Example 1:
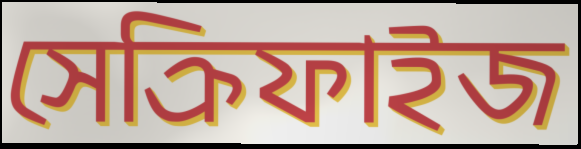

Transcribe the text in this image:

সেক্রিফাইজ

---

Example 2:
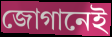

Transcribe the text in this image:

জোগানেই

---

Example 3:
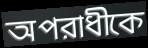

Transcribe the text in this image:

অপরাধীকে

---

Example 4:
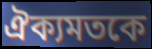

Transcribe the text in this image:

ঐক্যমতকে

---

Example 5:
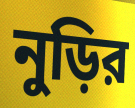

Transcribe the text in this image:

নুড়ির